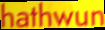
hathwun